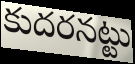
కుదరనట్టు